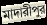
মাদারীপুর